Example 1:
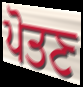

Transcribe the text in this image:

ਪੋਤਣ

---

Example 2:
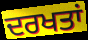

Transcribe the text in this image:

ਦਰਖਤਾਂ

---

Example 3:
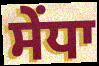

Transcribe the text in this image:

ਸੇਂਧਾ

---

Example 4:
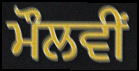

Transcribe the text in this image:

ਮੌਲਵੀਂ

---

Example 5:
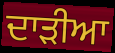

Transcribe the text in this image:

ਦਾੜੀਆ